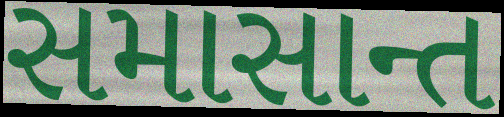
સમાસાન્ત